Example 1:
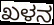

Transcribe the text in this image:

ಖಳನ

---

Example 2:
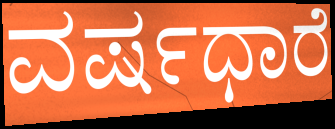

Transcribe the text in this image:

ವರ್ಷಧಾರೆ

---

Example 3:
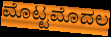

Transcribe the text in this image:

ಮೊಟ್ಟಮೊದಲ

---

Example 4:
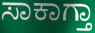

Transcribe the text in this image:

ಸಾಕಾಗ್ತಾ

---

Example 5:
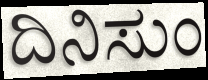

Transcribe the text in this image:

ದಿನಿಸುಂ